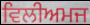
ਵਿਲੀਅਮਜ